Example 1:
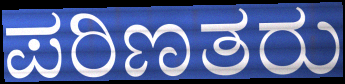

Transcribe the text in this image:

ಪರಿಣತರು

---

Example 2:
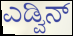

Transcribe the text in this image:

ಎಡ್ವಿನ್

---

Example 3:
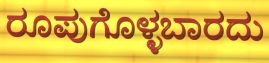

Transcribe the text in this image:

ರೂಪುಗೊಳ್ಳಬಾರದು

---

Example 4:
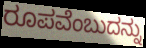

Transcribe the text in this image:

ರೂಪವೆಂಬುದನ್ನು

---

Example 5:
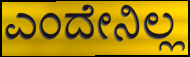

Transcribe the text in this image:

ಎಂದೇನಿಲ್ಲ